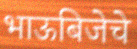
भाऊबिजेचे